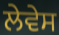
ਲੇਵੇਸ